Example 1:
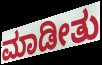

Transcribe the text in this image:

ಮಾಡೀತು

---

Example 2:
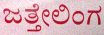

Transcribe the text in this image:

ಜತ್ತೇಲಿಂಗ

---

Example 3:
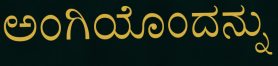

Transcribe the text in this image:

ಅಂಗಿಯೊಂದನ್ನು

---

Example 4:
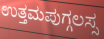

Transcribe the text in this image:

ಉತ್ತಮಪುಗ್ಗಲಸ್ಸ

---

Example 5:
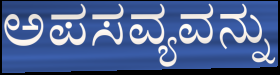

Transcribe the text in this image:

ಅಪಸವ್ಯವನ್ನು